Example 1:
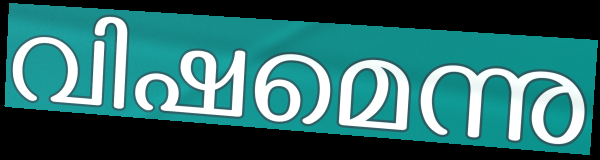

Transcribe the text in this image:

വിഷമെന്നു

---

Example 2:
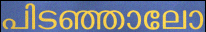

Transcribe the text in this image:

പിടഞ്ഞാലോ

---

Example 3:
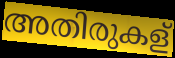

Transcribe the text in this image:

അതിരുകള്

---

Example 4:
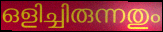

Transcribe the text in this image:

ഒളിച്ചിരുന്നതും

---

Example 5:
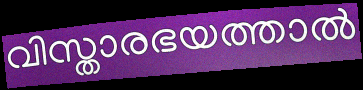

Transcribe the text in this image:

വിസ്താരഭയത്താൽ